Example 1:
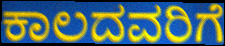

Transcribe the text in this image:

ಕಾಲದವರಿಗೆ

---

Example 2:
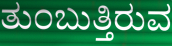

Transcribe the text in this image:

ತುಂಬುತ್ತಿರುವ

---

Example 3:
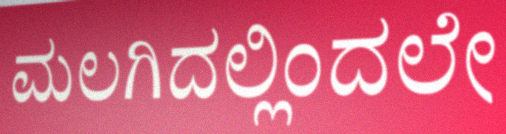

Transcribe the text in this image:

ಮಲಗಿದಲ್ಲಿಂದಲೇ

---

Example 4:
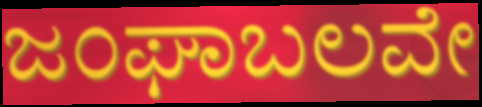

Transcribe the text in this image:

ಜಂಘಾಬಲವೇ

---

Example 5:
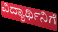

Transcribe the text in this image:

ವಿದ್ಯಾರ್ಥಿನಿಗೆ